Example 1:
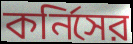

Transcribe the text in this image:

কর্নিসের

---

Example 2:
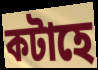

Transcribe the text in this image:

কটাহে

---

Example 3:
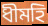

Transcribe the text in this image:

ধীমহি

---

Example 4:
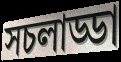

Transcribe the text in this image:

সচলাড্ডা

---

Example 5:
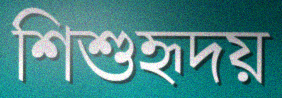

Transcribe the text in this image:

শিশুহৃদয়